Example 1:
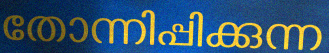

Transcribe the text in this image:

തോന്നിപ്പിക്കുന്ന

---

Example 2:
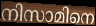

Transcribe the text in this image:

നിസാമിനെ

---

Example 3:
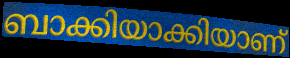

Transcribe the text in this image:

ബാക്കിയാക്കിയാണ്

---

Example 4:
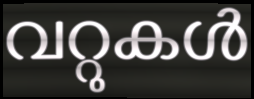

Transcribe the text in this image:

വറ്റുകൾ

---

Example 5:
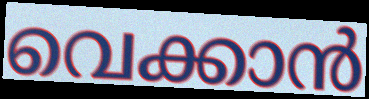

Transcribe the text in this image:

വെക്കാൻ